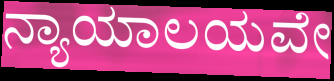
ನ್ಯಾಯಾಲಯವೇ